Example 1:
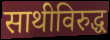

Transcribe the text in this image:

साथीविरुद्ध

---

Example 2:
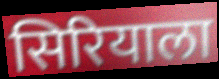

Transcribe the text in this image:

सिरियाला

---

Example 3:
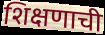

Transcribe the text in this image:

शिक्षणाची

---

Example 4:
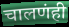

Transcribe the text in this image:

चालणंही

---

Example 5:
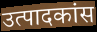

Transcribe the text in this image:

उत्पादकांस